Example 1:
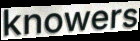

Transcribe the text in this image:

knowers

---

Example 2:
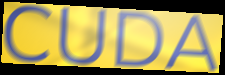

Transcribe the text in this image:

CUDA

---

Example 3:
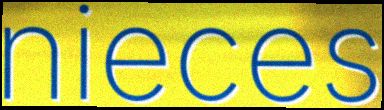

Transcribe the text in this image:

nieces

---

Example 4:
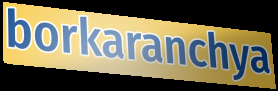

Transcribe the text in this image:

borkaranchya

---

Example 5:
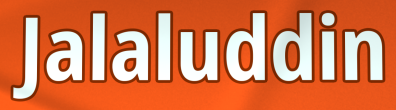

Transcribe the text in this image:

Jalaluddin